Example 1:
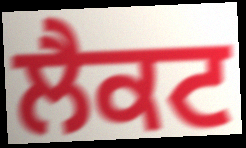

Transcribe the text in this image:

ਲੈਕਟ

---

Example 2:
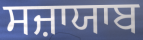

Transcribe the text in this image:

ਸਜ਼ਾਯਾਬ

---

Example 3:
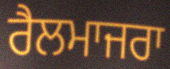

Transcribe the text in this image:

ਰੈਲਮਾਜਰਾ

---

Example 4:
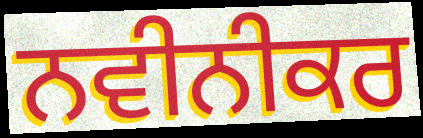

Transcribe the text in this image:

ਨਵੀਨੀਕਰ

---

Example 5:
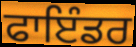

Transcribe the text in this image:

ਫਾਇੰਡਰ